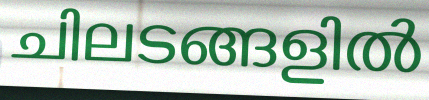
ചിലടങ്ങളിൽ